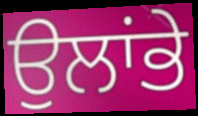
ਉਲਾਂਭੇ